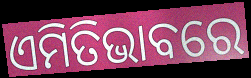
ଏମିତିଭାବରେ